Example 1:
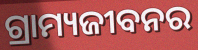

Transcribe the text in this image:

ଗ୍ରାମ୍ୟଜୀବନର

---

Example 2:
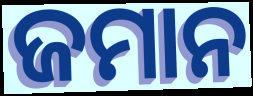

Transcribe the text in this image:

ଜମାନ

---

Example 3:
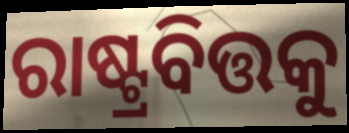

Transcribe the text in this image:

ରାଷ୍ଟ୍ରବିତ୍ତକୁ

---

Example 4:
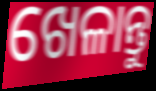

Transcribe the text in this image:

ଖେଳାନ୍ତୁ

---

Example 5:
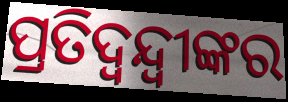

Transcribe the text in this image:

ପ୍ରତିଦ୍ୱନ୍ଦ୍ୱୀଙ୍କର